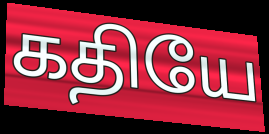
கதியே